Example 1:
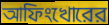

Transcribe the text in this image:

আফিংখোরের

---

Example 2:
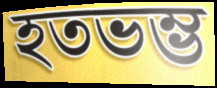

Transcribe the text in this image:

হতভম্ভ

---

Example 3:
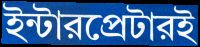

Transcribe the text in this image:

ইন্টারপ্রেটারই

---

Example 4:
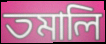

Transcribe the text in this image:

তমালি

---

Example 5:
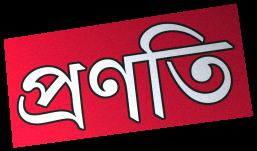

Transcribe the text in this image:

প্রণতি